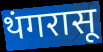
थंगरासू